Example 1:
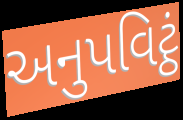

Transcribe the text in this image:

અનુપવિટ્ઠં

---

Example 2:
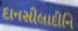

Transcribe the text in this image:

દાનસીલાદીનિ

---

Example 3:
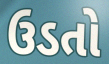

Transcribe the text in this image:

ઉડતો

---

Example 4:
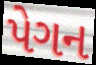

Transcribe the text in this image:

પેગન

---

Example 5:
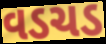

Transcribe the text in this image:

વડચડ